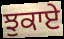
ਝੁਕਾਏ